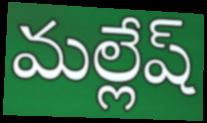
మల్లేష్